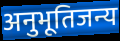
अनुभूतिजन्य